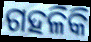
ଗହଳିକି